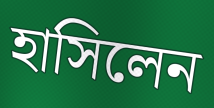
হাসিলেন